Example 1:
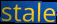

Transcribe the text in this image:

stale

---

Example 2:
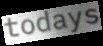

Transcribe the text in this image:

todays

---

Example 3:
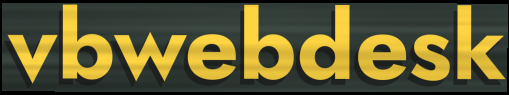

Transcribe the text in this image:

vbwebdesk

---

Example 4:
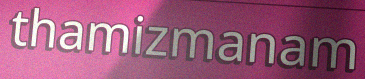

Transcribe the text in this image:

thamizmanam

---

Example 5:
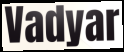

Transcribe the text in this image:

Vadyar